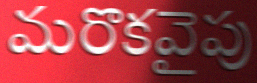
మరొకవైపు